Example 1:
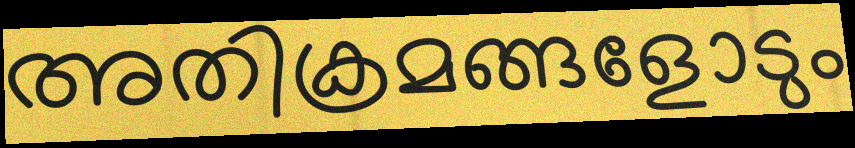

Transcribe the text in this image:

അതിക്രമങ്ങളോടും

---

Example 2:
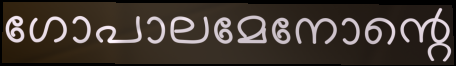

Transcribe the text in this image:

ഗോപാലമേനോന്റെ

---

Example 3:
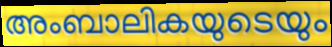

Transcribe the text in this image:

അംബാലികയുടെയും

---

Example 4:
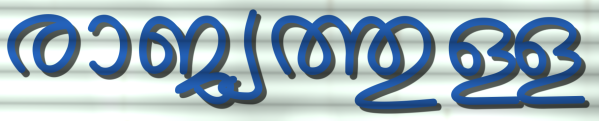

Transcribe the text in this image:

രാജ്യത്തുള്ള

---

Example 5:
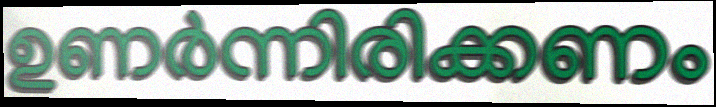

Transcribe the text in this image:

ഉണർന്നിരിക്കണം